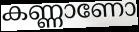
കണ്ണാണോ